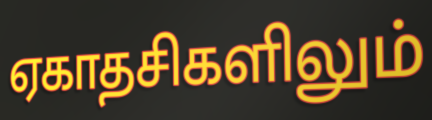
ஏகாதசிகளிலும்